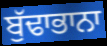
ਬੁੱਢਾਭਾਨਾ